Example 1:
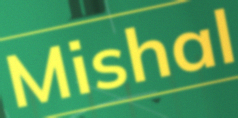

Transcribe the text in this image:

Mishal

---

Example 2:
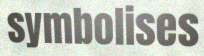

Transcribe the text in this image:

symbolises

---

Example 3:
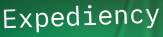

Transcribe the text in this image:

Expediency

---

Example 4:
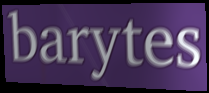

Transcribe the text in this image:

barytes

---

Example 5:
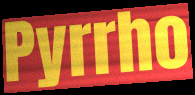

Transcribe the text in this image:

Pyrrho